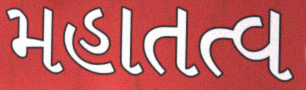
મહાતત્વ